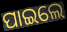
ପାଇଲେ